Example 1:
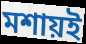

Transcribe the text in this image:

মশায়ই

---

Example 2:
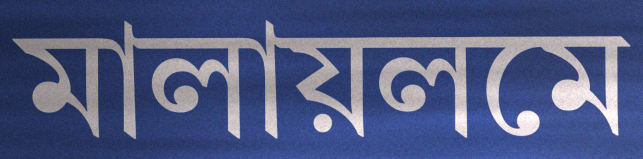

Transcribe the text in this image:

মালায়লমে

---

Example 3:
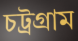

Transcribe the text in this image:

চট্রগ্রাম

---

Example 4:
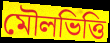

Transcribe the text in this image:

মৌলভিত্তি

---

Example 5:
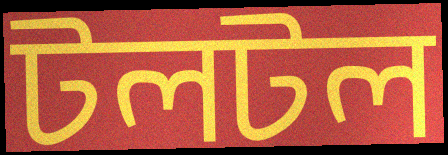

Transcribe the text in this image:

টলটল